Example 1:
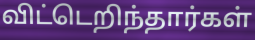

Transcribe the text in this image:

விட்டெறிந்தார்கள்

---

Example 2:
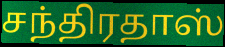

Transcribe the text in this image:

சந்திரதாஸ்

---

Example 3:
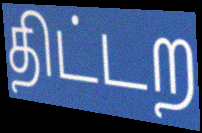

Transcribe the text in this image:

திட்டற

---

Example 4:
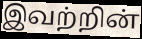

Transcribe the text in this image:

இவற்றின்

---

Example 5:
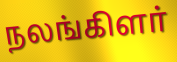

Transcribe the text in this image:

நலங்கிளர்